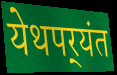
येथपर्यंत